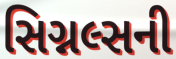
સિગ્નલ્સની